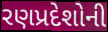
રણપ્રદેશોની